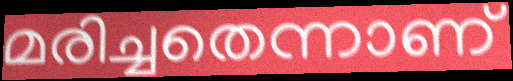
മരിച്ചതെന്നാണ്